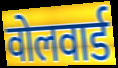
वोलवार्ड